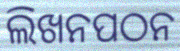
ଲିଖନପଠନ